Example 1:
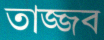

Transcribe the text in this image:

তাজ্জব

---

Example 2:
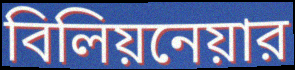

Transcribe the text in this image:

বিলিয়নেয়ার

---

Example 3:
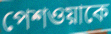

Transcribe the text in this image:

পেশওয়াকে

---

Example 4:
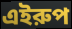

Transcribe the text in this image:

এইরুপ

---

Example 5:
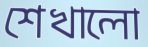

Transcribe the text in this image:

শেখালো